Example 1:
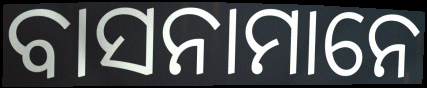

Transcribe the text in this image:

ବାସନାମାନେ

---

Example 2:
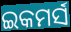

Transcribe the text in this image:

ଇକମର୍ସ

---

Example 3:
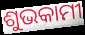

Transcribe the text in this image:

ଶୁଭକାମୀ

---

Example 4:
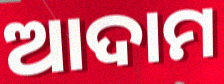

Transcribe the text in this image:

ଆଦାମ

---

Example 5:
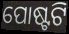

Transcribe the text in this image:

ପୋଷ୍ଟଟି